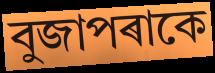
বুজাপৰাকে